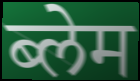
ब्लेम